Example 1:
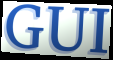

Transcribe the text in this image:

GUI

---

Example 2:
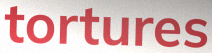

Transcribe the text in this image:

tortures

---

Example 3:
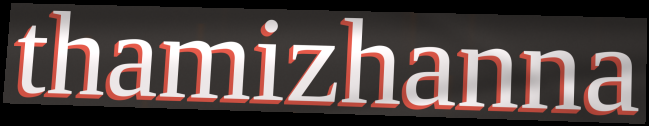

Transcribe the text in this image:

thamizhanna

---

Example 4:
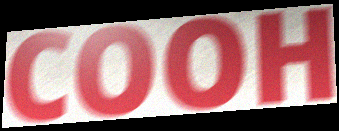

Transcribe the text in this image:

COOH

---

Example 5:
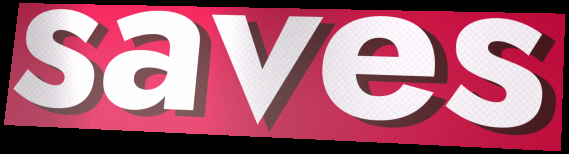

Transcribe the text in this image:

saves